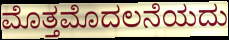
ಮೊತ್ತಮೊದಲನೆಯದು